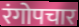
रंगोपचार